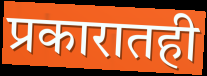
प्रकारातही